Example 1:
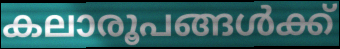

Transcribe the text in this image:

കലാരൂപങ്ങൾക്ക്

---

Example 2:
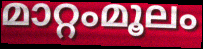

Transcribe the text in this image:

മാറ്റംമൂലം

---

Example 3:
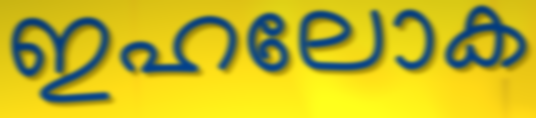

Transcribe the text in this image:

ഇഹലോക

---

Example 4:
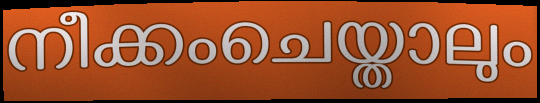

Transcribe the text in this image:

നീക്കംചെയ്താലും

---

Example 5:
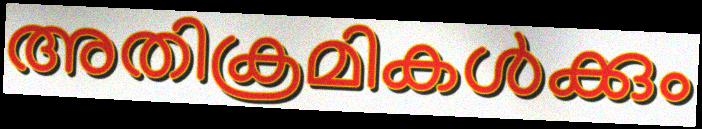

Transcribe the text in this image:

അതിക്രമികൾക്കും